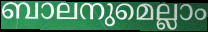
ബാലനുമെല്ലാം